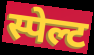
स्पेल्ट